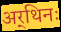
अर्थिनः